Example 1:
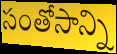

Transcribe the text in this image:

సంతోసాన్ని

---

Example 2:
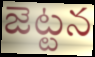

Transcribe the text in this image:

జెట్టన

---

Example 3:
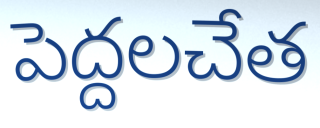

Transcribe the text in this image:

పెద్దలచేత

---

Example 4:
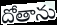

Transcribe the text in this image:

దోతాను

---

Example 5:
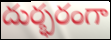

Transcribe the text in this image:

దుర్భరంగా